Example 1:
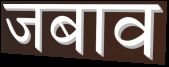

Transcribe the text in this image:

जबाव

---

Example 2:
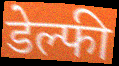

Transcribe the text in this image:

डेल्फी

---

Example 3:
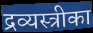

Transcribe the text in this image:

द्रव्यस्त्रीका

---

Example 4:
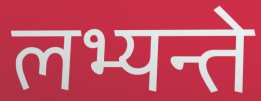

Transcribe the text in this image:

लभ्यन्ते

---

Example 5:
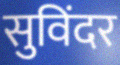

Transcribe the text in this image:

सुविंदर